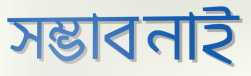
সম্ভাবনাই